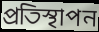
প্রতিস্থাপন